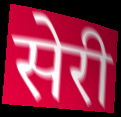
सेरी